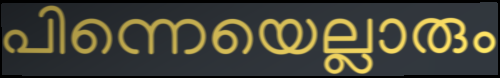
പിന്നെയെല്ലാരും